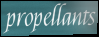
propellants